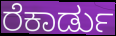
ರೆಕಾರ್ಡು